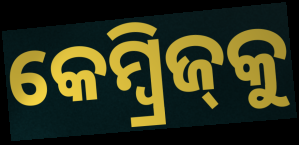
କେମ୍ୱ୍ରିଜ୍‌କୁ